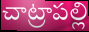
చాట్రాపల్లి